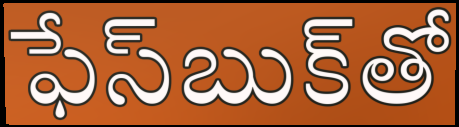
ఫేస్‌బుక్‌తో